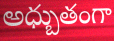
అధ్బుతంగా